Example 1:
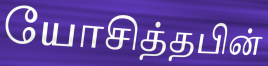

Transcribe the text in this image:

யோசித்தபின்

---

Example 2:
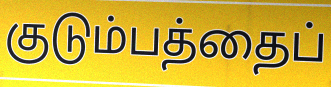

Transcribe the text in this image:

குடும்பத்தைப்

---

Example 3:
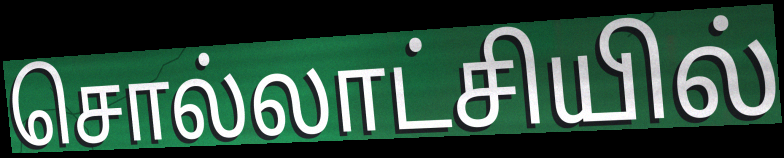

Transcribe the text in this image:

சொல்லாட்சியில்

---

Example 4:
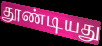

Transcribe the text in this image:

தூண்டியது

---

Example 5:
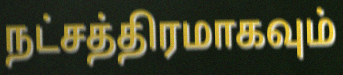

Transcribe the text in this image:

நட்சத்திரமாகவும்